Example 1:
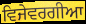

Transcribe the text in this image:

ਵਿਜੇਵਰਗੀਆ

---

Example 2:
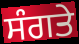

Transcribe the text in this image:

ਸੰਗਤੇ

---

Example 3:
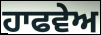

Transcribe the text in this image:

ਹਾਫਵੇਅ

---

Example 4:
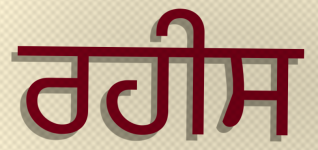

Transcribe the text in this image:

ਰਹੀਸ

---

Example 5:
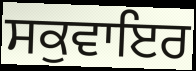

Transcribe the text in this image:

ਸਕੁਵਾਇਰ